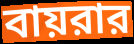
বায়রার